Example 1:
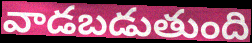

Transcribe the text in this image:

వాడబడుతుంది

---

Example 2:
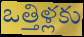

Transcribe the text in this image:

ఒత్తిళ్లకు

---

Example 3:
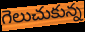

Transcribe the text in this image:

గెలుచుకున్న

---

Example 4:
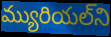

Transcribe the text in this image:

మ్యురియల్‌ని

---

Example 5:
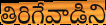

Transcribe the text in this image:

తిరిగేవాడిని